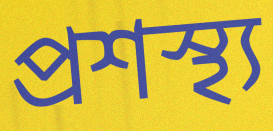
প্ৰশস্থ্য